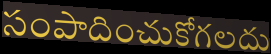
సంపాదించుకోగలదు